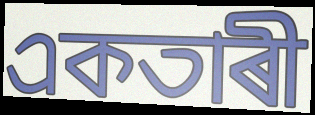
একতাৰী